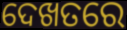
ଦେଖତରେ